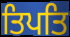
ਤਿਪਤਿ